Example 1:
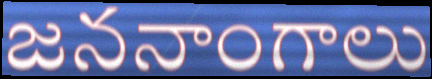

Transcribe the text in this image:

జననాంగాలు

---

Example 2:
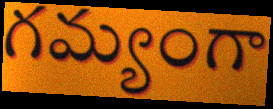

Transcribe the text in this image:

గమ్యంగా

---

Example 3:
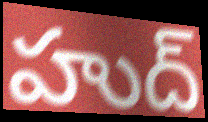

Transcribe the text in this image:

హుద్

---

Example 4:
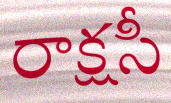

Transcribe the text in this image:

రాక్షసీ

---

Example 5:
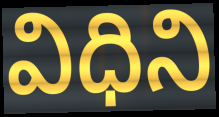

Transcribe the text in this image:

విధిని